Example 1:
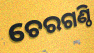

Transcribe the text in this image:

ଚେରଗଣ୍ଠି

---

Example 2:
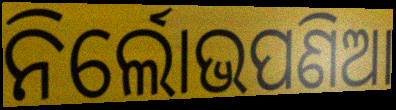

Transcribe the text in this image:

ନିର୍ଲୋଭପଣିଆ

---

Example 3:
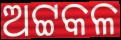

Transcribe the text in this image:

ଅଟ୍ଟକଳ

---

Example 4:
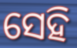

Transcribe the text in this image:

ସେହି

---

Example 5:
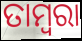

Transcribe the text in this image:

ତାମ୍ବରା